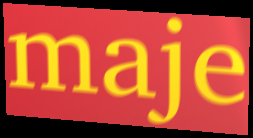
maje